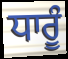
ਧਾਰੂੰ